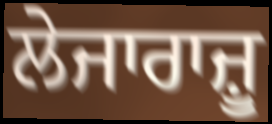
ਲੇਜਾਰਾਜ਼ੂ